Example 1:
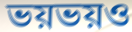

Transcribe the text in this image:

ভয়ভয়ও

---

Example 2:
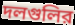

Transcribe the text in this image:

দলগুলির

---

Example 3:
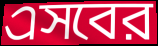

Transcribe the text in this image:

এসবের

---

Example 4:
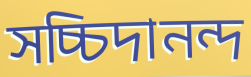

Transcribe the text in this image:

সচ্চিদানন্দ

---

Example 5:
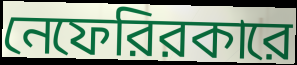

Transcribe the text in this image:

নেফেরিরকারে